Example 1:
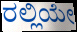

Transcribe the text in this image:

ರಲ್ಲಿಯೇ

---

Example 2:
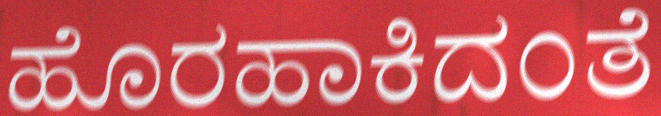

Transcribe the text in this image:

ಹೊರಹಾಕಿದಂತೆ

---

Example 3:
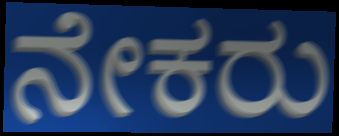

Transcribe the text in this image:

ನೇಕರು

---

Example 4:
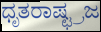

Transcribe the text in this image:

ಧೃತರಾಷ್ಟ್ರಜ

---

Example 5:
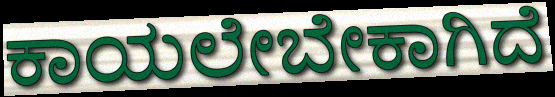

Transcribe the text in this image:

ಕಾಯಲೇಬೇಕಾಗಿದೆ